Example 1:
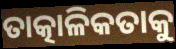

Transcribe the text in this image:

ତାତ୍କାଳିକତାକୁ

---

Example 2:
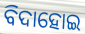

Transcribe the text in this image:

ବିଦାହୋଇ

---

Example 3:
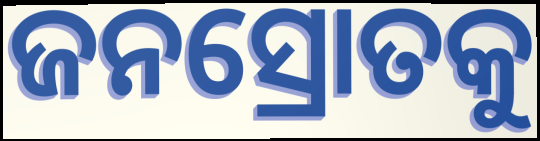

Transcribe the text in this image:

ଜନସ୍ରୋତକୁ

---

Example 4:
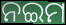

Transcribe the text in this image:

ନଇମ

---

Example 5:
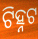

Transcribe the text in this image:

ଟିହ୍ନଟ